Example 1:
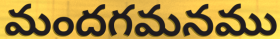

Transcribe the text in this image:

మందగమనము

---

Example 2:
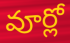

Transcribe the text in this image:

వూర్లో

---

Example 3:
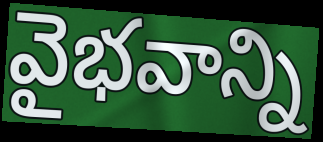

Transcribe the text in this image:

వైభవాన్ని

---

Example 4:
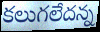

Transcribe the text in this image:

కలుగలేదన్న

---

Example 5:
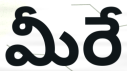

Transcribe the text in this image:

మీరే